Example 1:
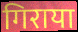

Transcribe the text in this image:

गिराया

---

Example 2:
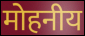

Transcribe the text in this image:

मोहनीय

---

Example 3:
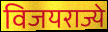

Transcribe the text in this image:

विजयराज्ये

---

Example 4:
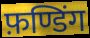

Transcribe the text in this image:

फ़ण्डिंग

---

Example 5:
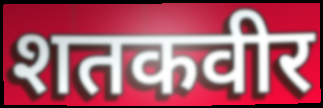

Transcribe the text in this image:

शतकवीर